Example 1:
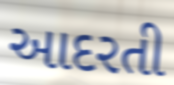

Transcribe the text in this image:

આદરતી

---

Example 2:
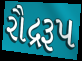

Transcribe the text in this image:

રૌદ્રરૂપ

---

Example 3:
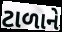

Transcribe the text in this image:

ટાળાને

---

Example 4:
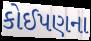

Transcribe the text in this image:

કોઈપણના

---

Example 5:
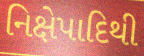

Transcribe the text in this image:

નિક્ષેપાદિથી